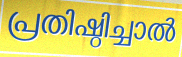
പ്രതിഷ്ഠിച്ചാൽ